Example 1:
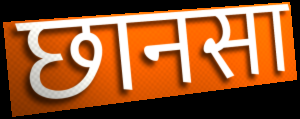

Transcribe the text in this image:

छानसा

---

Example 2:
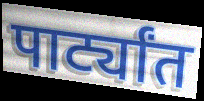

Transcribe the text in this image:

पार्ट्यांत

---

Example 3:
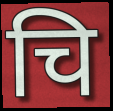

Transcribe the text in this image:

चि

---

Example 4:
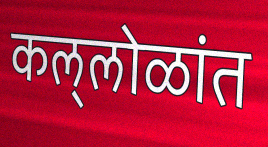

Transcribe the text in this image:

कल्लोळांत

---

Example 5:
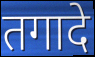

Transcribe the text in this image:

तगादे